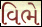
વિભે